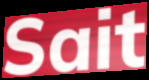
Sait